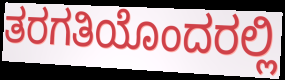
ತರಗತಿಯೊಂದರಲ್ಲಿ